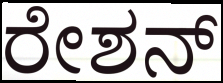
ರೇಶನ್